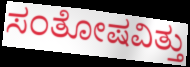
ಸಂತೋಷವಿತ್ತು